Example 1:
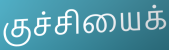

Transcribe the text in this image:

குச்சியைக்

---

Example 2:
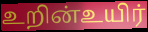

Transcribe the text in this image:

உறின்உயிர்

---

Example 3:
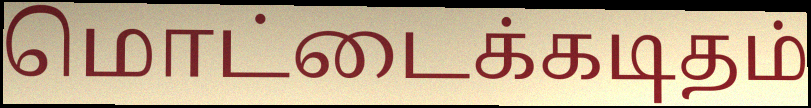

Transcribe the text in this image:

மொட்டைக்கடிதம்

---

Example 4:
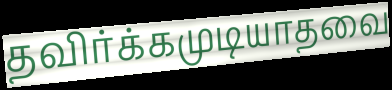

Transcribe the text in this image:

தவிர்க்கமுடியாதவை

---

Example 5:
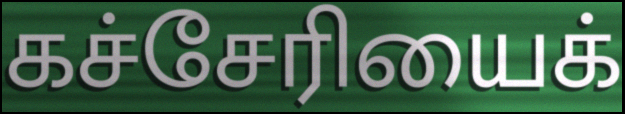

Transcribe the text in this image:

கச்சேரியைக்